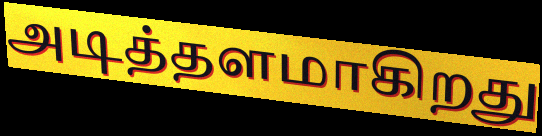
அடித்தளமாகிறது